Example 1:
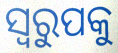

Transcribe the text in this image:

ସ୍ଵରୁପକୁ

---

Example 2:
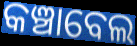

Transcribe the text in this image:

କଞ୍ଚାବେଲ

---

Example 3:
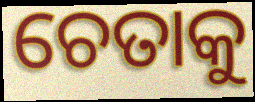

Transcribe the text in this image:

ଚେତାକୁ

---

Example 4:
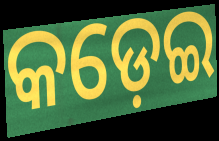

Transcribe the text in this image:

କଡ଼େଇ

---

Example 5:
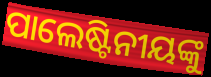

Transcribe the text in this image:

ପାଲେଷ୍ଟିନୀୟଙ୍କୁ